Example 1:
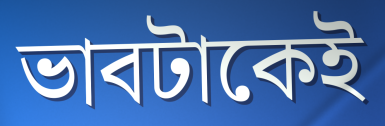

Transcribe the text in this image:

ভাবটাকেই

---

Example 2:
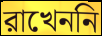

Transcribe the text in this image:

রাখেননি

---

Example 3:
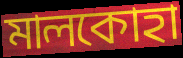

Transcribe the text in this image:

মালকোহা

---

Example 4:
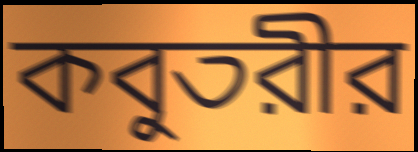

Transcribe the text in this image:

কবুতরীর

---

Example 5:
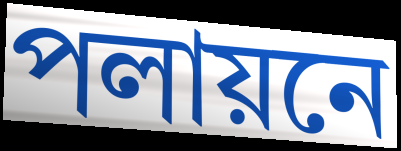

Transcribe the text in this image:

পলায়নে